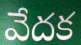
వేదక